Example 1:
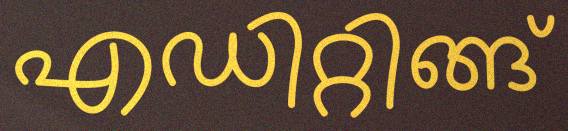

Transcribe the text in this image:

എഡിറ്റിങ്ങ്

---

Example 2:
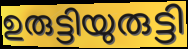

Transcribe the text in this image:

ഉരുട്ടിയുരുട്ടി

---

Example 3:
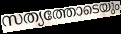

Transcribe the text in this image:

സത്യത്തോടെയും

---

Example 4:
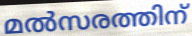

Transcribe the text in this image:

മൽസരത്തിന്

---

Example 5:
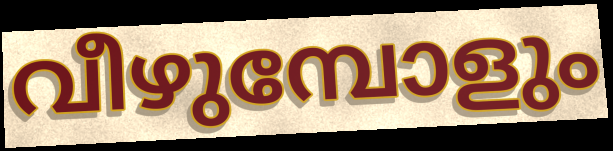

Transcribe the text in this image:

വീഴുമ്പോളും